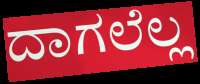
ದಾಗಲೆಲ್ಲ